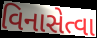
વિનાસેત્વા